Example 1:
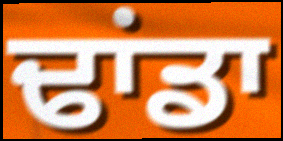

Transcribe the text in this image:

ਢਾਂਡਾ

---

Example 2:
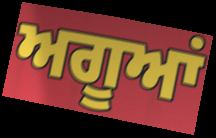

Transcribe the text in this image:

ਅਗੂਆਂ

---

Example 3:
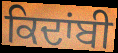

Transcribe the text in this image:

ਕਿਦਾਂਬੀ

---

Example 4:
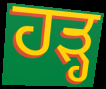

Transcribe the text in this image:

ਹੜ੍ਹ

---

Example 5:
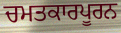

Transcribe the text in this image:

ਚਮਤਕਾਰਪੂਰਨ